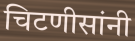
चिटणीसांनी